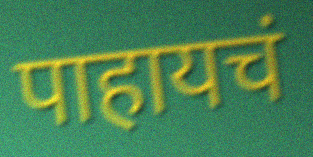
पाहायचं